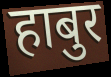
हाबुर